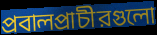
প্রবালপ্রাচীরগুলো